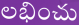
లభించు